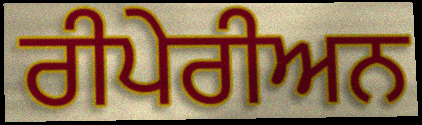
ਰੀਪੇਰੀਅਨ